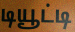
டியூட்டி